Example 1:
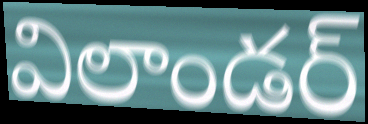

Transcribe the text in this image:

విలాండర్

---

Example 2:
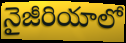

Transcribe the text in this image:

నైజీరియాలో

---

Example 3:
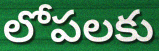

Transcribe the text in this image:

లోపలకు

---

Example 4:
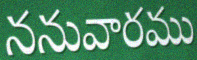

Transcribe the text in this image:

ననువారము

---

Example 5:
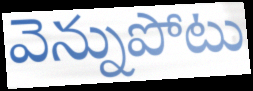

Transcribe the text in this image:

వెన్నుపోటు